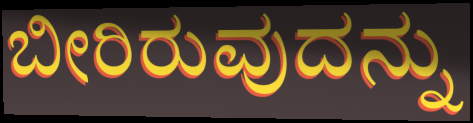
ಬೀರಿರುವುದನ್ನು